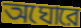
অঘোরে